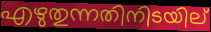
എഴുതുന്നതിനിടയില്